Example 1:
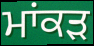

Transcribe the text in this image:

ਮਾਂਕੜ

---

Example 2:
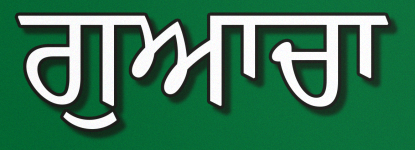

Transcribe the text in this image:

ਗੁਆਚਾ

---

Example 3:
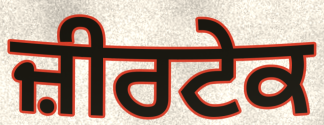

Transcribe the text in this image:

ਜ਼ੀਰਟੇਕ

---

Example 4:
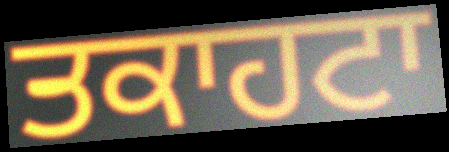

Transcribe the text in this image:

ਤਕਾਹਟਾ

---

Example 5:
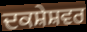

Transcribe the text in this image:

ਦਕਸ਼ੇਸ਼ਵਰ